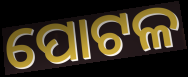
ପୋଟଳ